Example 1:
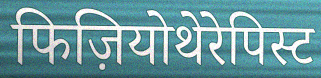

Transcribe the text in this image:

फिज़ियोथेरेपिस्ट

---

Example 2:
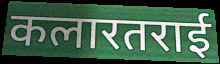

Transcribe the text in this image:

कलारतराई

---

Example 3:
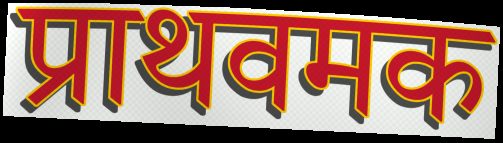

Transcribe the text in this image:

प्राथवमक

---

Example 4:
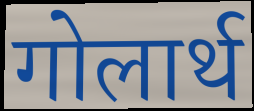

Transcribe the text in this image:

गोलार्थ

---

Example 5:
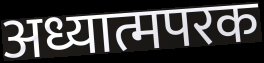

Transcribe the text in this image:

अध्यात्मपरक